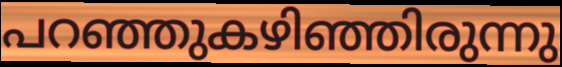
പറഞ്ഞുകഴിഞ്ഞിരുന്നു